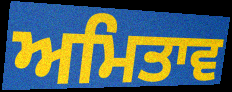
ਅਮਿਤਾਵ